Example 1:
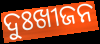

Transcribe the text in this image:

ଦୁଃଖୀଜନ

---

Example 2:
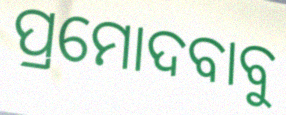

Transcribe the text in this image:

ପ୍ରମୋଦବାବୁ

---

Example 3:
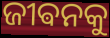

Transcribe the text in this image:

ଜୀଵନକୁ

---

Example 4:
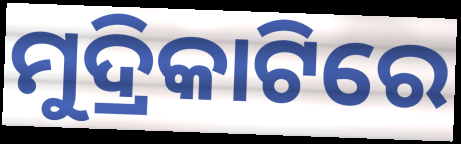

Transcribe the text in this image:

ମୁଦ୍ରିକାଟିରେ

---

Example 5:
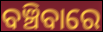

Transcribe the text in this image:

ବଞ୍ଚିବାରେ